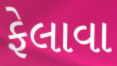
ફેલાવા